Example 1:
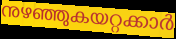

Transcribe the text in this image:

നുഴഞ്ഞുകയറ്റക്കാർ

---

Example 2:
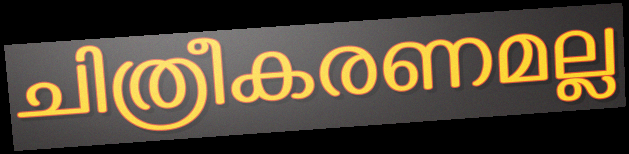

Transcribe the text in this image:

ചിത്രീകരണമല്ല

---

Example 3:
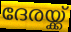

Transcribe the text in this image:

ദേരയ്ക്ക്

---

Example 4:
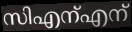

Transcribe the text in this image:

സിഎന്എന്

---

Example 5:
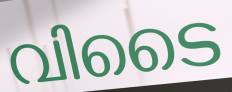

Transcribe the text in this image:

വിടൈ